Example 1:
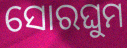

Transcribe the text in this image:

ସୋରଘୁମ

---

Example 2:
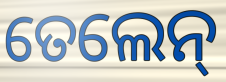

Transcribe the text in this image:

ତେଲେନ୍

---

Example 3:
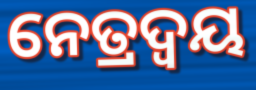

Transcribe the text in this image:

ନେତ୍ରଦ୍ଵୟ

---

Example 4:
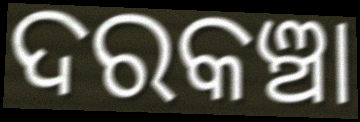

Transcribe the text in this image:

ଦରକଞ୍ଚା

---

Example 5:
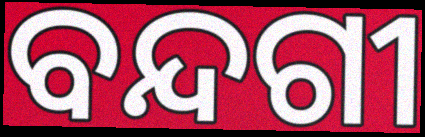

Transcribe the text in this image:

ବନ୍ଦଗୀ